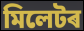
মিলেটৰ